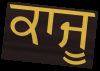
ਕਾਜੂ